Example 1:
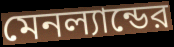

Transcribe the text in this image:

মেনল্যান্ডের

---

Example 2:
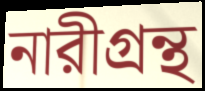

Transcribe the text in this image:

নারীগ্রন্থ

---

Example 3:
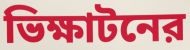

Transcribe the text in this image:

ভিক্ষাটনের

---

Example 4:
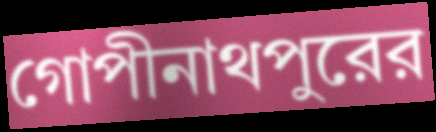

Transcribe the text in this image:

গোপীনাথপুরের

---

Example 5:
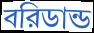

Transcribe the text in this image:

বরিডান্ড